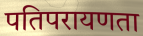
पतिपरायणता